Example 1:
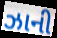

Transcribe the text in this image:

ઝાની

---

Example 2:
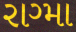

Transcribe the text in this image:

રાગ્મા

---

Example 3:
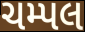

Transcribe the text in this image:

ચમ્પલ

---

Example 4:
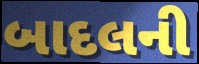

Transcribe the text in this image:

બાદલની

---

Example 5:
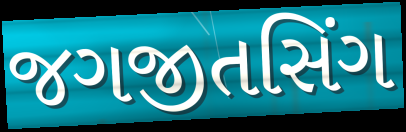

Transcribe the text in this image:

જગજીતસિંગ